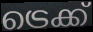
ട്രെക്ക്